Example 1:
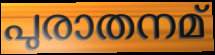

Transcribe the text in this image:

പുരാതനമ്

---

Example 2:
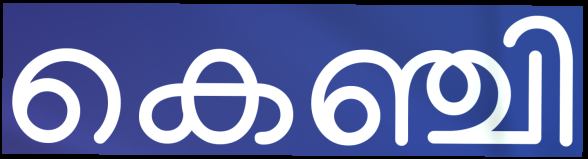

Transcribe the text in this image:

കെഞ്ചി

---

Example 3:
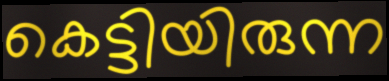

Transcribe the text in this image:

കെട്ടിയിരുന്ന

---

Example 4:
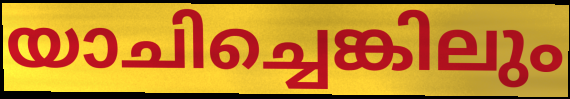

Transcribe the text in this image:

യാചിച്ചെങ്കിലും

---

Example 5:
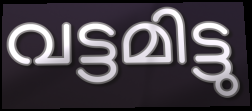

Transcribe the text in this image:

വട്ടമിട്ടു